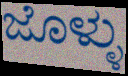
ಜೊಳ್ಳು